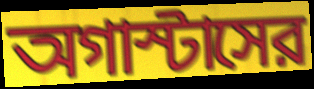
অগাস্টাসের